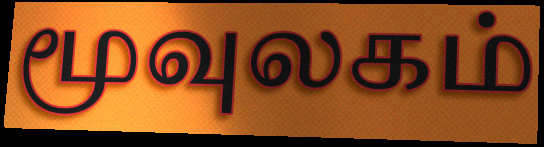
மூவுலகம்